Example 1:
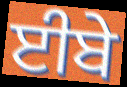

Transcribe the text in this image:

ਈਬੇ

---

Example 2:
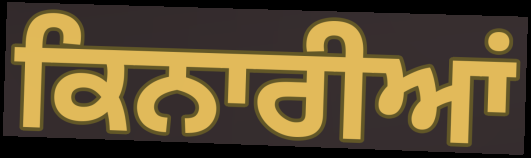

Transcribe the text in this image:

ਕਿਨਾਰੀਆਂ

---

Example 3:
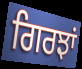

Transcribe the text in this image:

ਗਿਰਝਾਂ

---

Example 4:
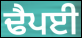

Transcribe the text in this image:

ਢੈਪਈ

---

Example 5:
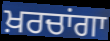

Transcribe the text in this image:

ਖ਼ਰਚਾਂਗਾ